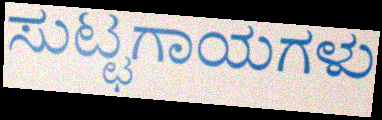
ಸುಟ್ಟಗಾಯಗಳು